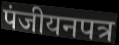
पंजीयनपत्र